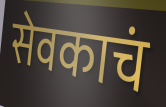
सेवकाचं